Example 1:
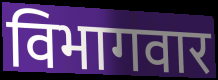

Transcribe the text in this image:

विभागवार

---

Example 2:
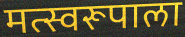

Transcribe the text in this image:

मत्स्वरूपाला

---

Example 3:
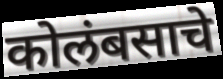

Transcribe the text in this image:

कोलंबसाचे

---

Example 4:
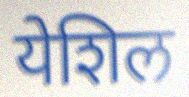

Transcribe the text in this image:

येशिल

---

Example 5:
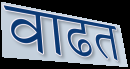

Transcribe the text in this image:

वाढत